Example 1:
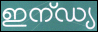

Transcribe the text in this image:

ഇന്ഡ്യ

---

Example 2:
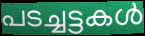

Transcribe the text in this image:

പടച്ചട്ടകൾ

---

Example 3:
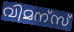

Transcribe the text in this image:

വിമന്സ്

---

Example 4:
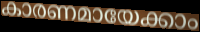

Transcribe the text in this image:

കാരണമായേക്കാം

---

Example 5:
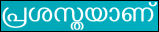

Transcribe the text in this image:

പ്രശസ്തയാണ്